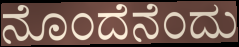
ನೊಂದೆನೆಂದು